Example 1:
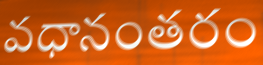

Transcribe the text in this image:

వధానంతరం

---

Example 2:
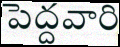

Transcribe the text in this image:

పెద్దవారి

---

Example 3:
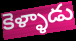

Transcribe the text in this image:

కెళ్ళాడు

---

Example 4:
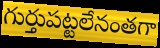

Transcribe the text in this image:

గుర్తుపట్టలేనంతగా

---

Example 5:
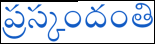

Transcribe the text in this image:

ప్రస్కందంతి